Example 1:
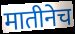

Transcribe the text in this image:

मातीनेच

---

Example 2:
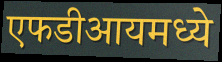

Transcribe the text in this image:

एफडीआयमध्ये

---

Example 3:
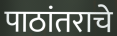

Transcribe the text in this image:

पाठांतराचे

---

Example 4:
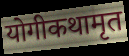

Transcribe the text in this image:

योगीकथामृत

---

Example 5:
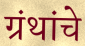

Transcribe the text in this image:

ग्रंथांचे